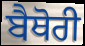
ਬੈਥੋਰੀ